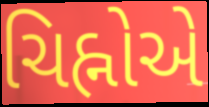
ચિહ્નોએ